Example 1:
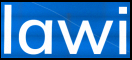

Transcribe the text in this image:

lawi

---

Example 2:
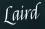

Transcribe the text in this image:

Laird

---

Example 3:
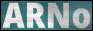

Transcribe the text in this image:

ARNo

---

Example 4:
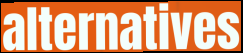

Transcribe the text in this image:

alternatives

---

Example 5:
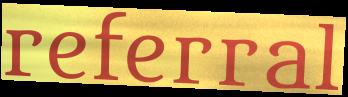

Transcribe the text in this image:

referral